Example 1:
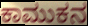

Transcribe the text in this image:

ಕಾಮುಕನ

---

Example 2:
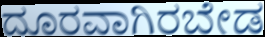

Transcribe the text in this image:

ದೂರವಾಗಿರಬೇಡ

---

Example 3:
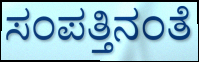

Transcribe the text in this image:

ಸಂಪತ್ತಿನಂತೆ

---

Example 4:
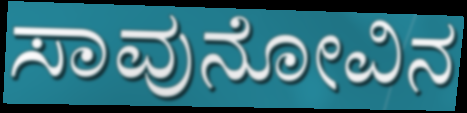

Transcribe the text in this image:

ಸಾವುನೋವಿನ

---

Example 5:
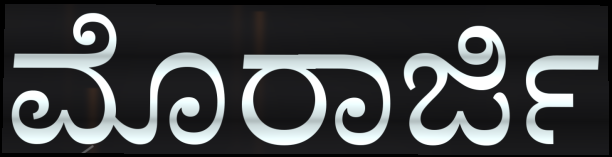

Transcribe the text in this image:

ಮೊರಾರ್ಜಿ